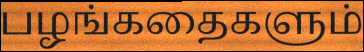
பழங்கதைகளும்